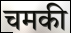
चमकी